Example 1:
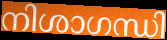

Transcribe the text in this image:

നിശാഗന്ധി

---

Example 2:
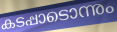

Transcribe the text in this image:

കടപ്പാടൊന്നും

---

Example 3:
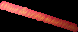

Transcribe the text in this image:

സംവിധായകനൊപ്പം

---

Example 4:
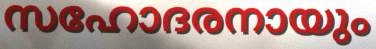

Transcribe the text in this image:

സഹോദരനായും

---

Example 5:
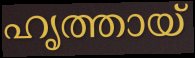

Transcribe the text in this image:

ഹൃത്തായ്